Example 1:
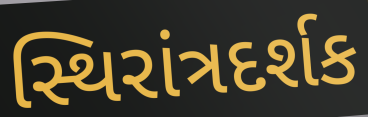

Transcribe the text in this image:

સ્થિરાંત્રદર્શક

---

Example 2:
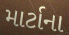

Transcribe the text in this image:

માર્ટાના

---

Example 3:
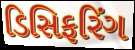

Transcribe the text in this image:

ડિસિફરિંગ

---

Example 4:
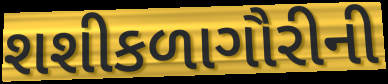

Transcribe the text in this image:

શશીકળાગૌરીની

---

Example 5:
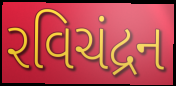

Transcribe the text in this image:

રવિચંદ્રન